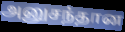
அனுசந்தான